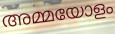
അമ്മയോളം